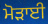
ਮੋੜਾਈ